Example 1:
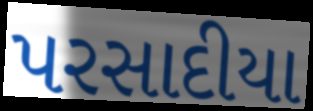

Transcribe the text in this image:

પરસાદીયા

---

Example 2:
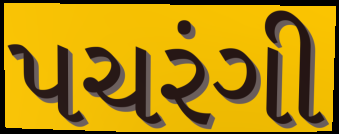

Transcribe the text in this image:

પચરંગી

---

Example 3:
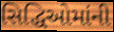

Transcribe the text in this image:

સિદ્ધિઓમાંની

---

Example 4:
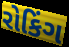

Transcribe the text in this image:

રોકિંગ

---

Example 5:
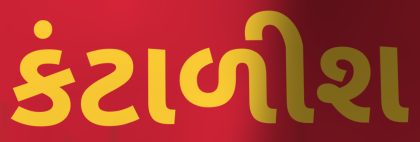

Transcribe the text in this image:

કંટાળીશ